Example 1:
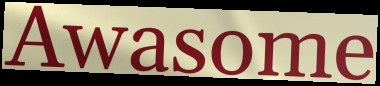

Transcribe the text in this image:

Awasome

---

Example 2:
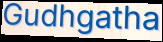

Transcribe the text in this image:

Gudhgatha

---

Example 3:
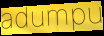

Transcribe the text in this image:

adumpu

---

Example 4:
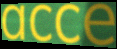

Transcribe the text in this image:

acce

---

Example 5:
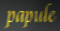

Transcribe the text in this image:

papule